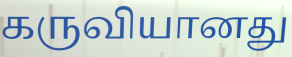
கருவியானது